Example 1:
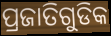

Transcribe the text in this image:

ପ୍ରଜାତିଗୁଡିକ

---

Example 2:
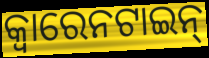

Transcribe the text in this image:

କ୍ୱାରେନଟାଇନ୍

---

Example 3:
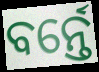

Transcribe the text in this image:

ବର୍ନ୍ତେ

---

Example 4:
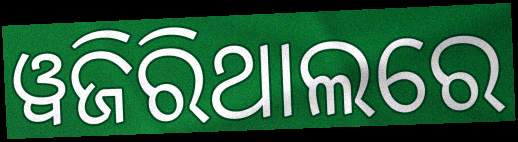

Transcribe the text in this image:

ୱଜିରିଥାଲରେ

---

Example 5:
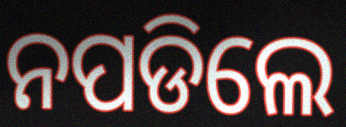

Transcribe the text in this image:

ନପଡିଲେ